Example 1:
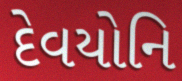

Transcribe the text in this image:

દેવયોનિ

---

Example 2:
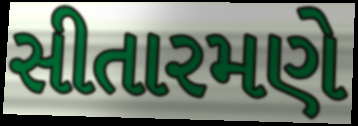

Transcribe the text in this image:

સીતારમણે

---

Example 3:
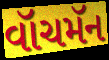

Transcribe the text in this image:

વૉચમૅન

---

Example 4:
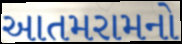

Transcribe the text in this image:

આતમરામનો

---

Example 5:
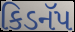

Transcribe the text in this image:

કિડનૅપ